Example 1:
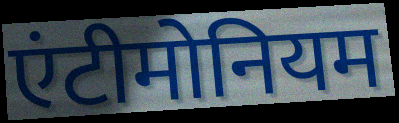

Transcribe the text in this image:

एंटीमोनियम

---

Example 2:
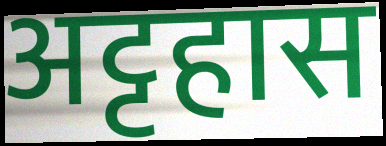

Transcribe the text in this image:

अट्टहास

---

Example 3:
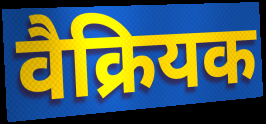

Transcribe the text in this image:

वैक्रियक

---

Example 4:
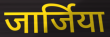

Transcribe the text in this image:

जार्जिया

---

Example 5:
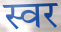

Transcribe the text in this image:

स्वर